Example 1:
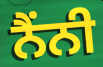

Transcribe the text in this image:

ਨੈਂਨੀ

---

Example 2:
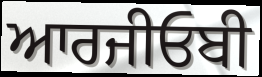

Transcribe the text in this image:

ਆਰਜੀਓਬੀ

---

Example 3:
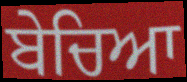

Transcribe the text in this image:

ਬੇਚਿਆ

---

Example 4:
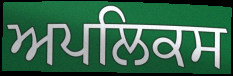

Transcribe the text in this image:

ਅਪਲਿਕਸ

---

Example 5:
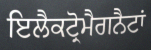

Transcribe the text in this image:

ਇਲੈਕਟ੍ਰੋਮੈਗਨੈਟਾਂ